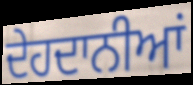
ਦੇਹਦਾਨੀਆਂ